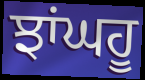
ਝਾਂਘਹੂ